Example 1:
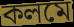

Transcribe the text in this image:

কলমে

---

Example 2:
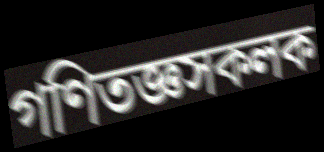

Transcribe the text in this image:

গণিতজ্ঞসকলক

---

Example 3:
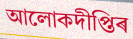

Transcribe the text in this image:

আলোকদীপ্তিৰ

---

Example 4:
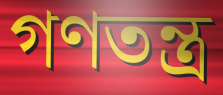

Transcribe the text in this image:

গণতন্ত্ৰ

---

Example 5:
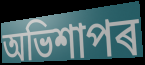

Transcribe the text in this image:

অভিশাপৰ